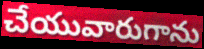
చేయువారుగాను